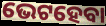
ଭେଟହେବା